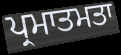
ਪ੍ਰਮਾਤਮਤਾ